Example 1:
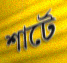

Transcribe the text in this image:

শার্টে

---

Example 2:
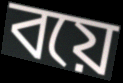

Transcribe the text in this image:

বয়ে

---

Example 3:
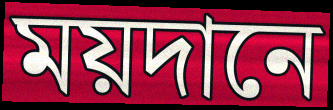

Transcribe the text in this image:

ময়দানে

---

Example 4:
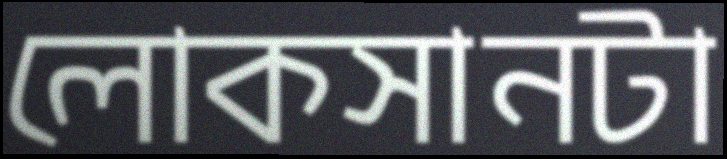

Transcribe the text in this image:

লোকসানটা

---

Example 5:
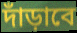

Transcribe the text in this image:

দাঁড়াবে